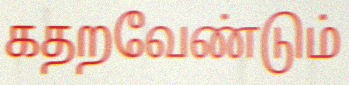
கதறவேண்டும்